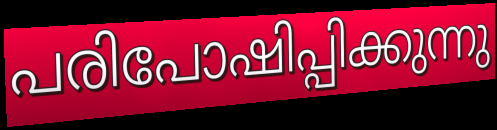
പരിപോഷിപ്പിക്കുന്നു